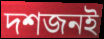
দশজনই